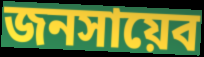
জনসায়েব